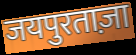
जयपुरताज़ा